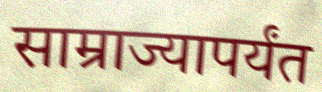
साम्राज्यापर्यंत